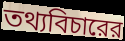
তথ্যবিচারের